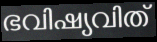
ഭവിഷ്യവിത്